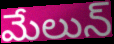
మేలున్